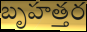
బృహత్తర